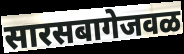
सारसबागेजवळ